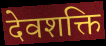
देवशक्ति